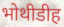
भोथीडीह